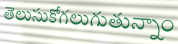
తెలుసుకోగలుగుతున్నాం